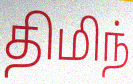
திமிந்